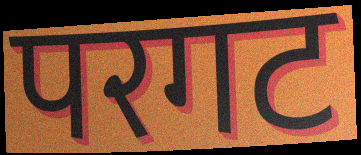
परगट